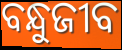
ବନ୍ଧୁଜୀବ